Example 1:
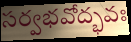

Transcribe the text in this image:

సర్వభవోద్భవః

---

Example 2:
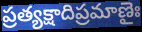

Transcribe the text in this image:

ప్రత్యక్షాదిప్రమాణైః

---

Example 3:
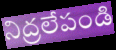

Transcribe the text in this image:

నిద్రలేపండి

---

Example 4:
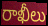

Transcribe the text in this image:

రాఖీలు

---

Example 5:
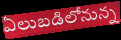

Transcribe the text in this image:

ఏలుబడిలోనున్న